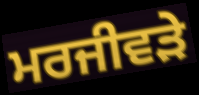
ਮਰਜੀਵੜੇ